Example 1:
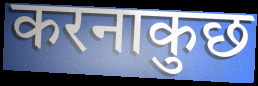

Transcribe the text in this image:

करनाकुछ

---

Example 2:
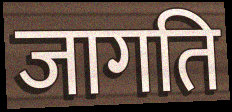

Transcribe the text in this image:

जागति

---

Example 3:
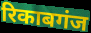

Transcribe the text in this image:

रिकाबगंज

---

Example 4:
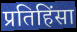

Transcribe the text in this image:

प्रतिहिंसा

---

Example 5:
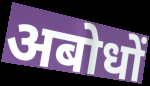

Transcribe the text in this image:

अबोधों